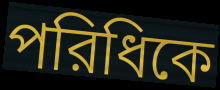
পরিধিকে